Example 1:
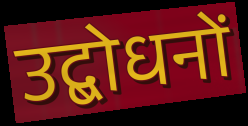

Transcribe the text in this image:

उद्बोधनों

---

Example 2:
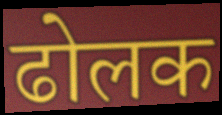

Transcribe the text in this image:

ढोलक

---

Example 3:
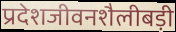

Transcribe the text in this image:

प्रदेशजीवनशैलीबड़ी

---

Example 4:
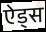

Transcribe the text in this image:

ऐड्स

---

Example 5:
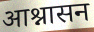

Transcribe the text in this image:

आश्नासन